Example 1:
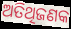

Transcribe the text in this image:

ଅତିଥିଜଣକ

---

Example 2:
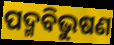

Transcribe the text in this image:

ପଦ୍ମବିଭୁଷଣ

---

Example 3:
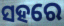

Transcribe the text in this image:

ସହରେ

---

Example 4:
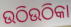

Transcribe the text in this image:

ଉଠିଉଠିକା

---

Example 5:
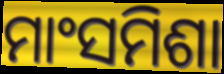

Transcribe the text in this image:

ମାଂସମିଶା